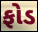
ફોડ